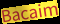
Bacaim